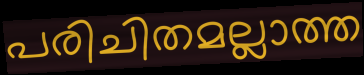
പരിചിതമല്ലാത്ത